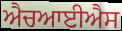
ਐਚਆਈਐਸ